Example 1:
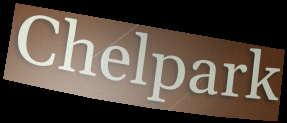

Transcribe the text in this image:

Chelpark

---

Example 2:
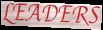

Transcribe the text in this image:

LEADERS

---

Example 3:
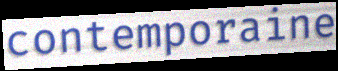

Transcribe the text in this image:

contemporaine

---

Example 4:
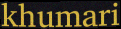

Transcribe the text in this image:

khumari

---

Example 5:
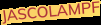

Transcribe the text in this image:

JASCOLAMPF